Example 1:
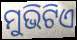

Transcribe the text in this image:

ମୁଭିଟିଏ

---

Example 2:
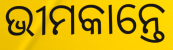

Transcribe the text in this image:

ଭୀମକାନ୍ତେ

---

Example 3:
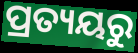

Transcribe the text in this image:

ପ୍ରତ୍ୟୟରୁ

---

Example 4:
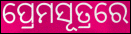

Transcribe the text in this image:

ପ୍ରେମସୂତ୍ରରେ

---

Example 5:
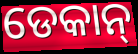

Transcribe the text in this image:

ଡେକାନ୍